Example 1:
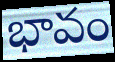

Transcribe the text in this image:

భావం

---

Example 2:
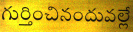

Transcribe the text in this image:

గుర్తించినందువల్లే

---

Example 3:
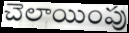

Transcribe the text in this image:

చెలాయింపు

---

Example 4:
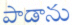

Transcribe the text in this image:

పాడాను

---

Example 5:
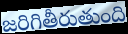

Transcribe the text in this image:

జరిగితీరుతుంది